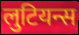
लुटियन्स